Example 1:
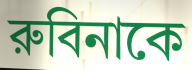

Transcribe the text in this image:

রুবিনাকে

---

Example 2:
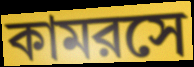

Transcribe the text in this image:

কামরসে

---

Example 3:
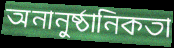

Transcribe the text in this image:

অনানুষ্ঠানিকতা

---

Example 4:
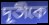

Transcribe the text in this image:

দূতীকে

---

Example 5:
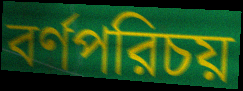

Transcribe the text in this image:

বর্ণপরিচয়